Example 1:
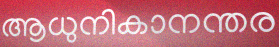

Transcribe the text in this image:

ആധുനികാനന്തര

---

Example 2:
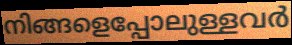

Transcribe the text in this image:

നിങ്ങളെപ്പോലുള്ളവർ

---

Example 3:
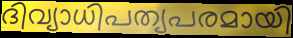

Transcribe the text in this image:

ദിവ്യാധിപത്യപരമായി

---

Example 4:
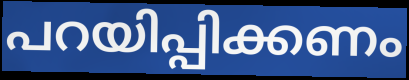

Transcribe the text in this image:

പറയിപ്പിക്കണം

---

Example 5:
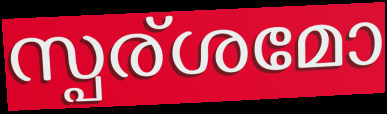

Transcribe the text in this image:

സ്പര്ശമോ